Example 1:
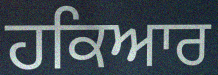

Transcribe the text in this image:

ਹਕਿਆਰ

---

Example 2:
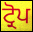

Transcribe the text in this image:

ਟ੍ਰੋਪ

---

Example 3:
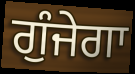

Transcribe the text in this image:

ਗੁੰਜੇਗਾ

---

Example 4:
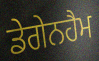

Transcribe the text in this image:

ਡੇਗੇਨਹੈਮ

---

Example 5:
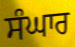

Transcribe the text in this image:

ਸੰਘਾਰ